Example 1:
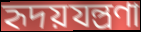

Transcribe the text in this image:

হৃদয়যন্ত্রণা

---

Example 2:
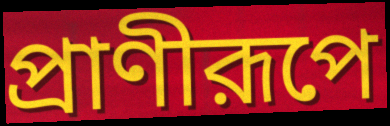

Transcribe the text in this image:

প্রাণীরূপে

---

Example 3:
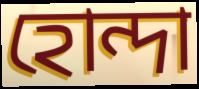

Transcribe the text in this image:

হোন্দা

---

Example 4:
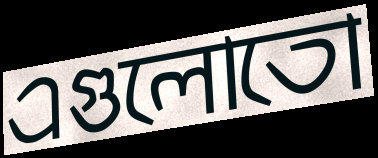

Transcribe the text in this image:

এগুলোতো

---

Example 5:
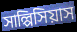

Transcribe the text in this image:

সাল্পিসিয়াস